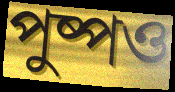
পুষ্পও